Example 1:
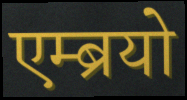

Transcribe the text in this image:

एम्ब्रयो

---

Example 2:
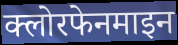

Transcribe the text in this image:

क्लोरफेनमाइन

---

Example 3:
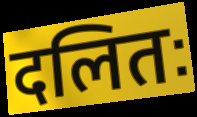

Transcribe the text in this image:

दलितः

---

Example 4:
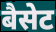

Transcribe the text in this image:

बैसेट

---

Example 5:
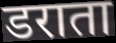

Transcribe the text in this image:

डराता